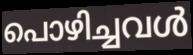
പൊഴിച്ചവൾ